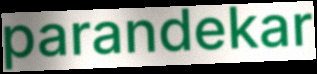
parandekar